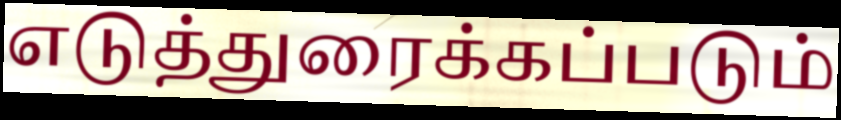
எடுத்துரைக்கப்படும்